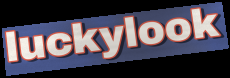
luckylook